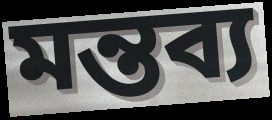
মন্তব্য